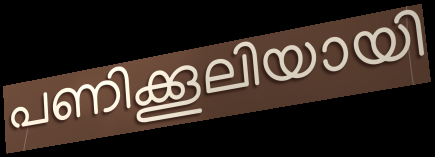
പണിക്കൂലിയായി